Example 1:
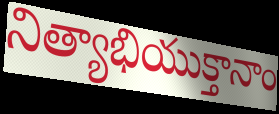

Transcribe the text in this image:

నిత్యాభియుక్తానాం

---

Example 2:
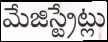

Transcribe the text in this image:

మేజిస్ట్రేట్లు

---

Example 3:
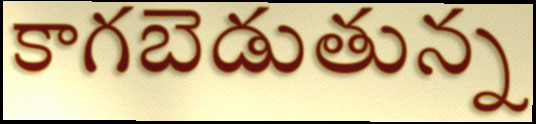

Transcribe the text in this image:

కాగబెడుతున్న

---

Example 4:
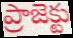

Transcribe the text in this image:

ప్రాజెక్టు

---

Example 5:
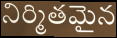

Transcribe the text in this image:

నిర్మితమైన